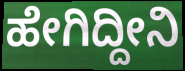
ಹೇಗಿದ್ದೀನಿ